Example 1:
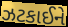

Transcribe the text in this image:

ઝટકાઈને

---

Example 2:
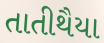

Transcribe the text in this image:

તાતીથૈયા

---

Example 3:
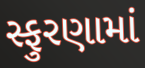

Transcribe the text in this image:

સ્ફુરણામાં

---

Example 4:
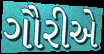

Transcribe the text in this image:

ગૌરીએ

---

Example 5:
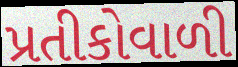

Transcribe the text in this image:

પ્રતીકોવાળી